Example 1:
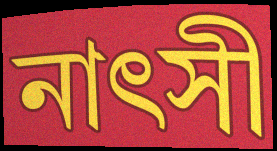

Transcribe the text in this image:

নাৎসী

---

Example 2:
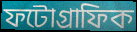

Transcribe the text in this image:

ফটোগ্ৰাফিক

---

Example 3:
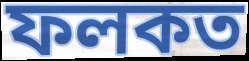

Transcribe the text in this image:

ফলকত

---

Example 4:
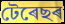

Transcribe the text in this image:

টেৰেছৰ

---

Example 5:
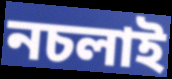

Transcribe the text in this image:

নচলাই